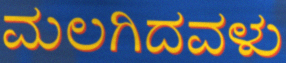
ಮಲಗಿದವಳು